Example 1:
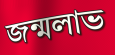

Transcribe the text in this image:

জন্মলাভ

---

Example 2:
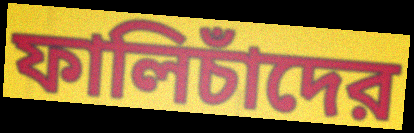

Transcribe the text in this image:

ফালিচাঁদের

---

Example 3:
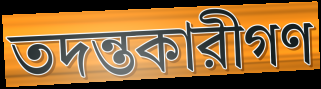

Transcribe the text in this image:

তদন্তকারীগণ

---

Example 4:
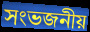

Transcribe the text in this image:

সংভজনীয়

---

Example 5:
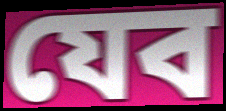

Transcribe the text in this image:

যেব